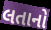
લતાનો